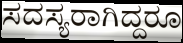
ಸದಸ್ಯರಾಗಿದ್ದರೂ